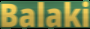
Balaki